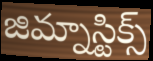
జిమ్నాస్టిక్స్